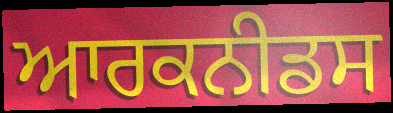
ਆਰਕਨੀਡਸ